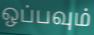
ஒப்பவும்